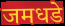
जमधडे